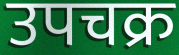
उपचक्र